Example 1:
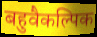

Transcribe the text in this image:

बहुवैकल्पिक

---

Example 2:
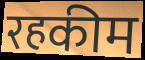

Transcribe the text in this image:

रहकीम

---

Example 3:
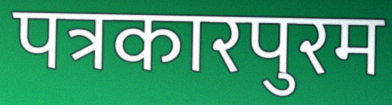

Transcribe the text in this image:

पत्रकारपुरम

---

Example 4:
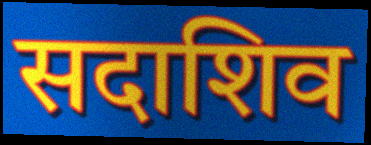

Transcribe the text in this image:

सदाशिव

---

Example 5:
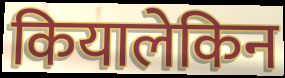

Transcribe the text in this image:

कियालेकिन